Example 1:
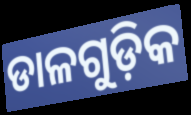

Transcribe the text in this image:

ଡାଳଗୁଡ଼ିକ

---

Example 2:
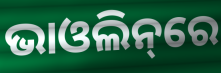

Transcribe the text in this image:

ଭାଓଲିନ୍‌ରେ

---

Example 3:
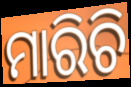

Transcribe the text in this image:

ମାରିଚି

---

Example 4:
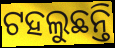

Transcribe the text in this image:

ଟହଲୁଛନ୍ତି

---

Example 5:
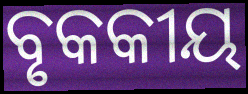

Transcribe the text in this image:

ବୃକକୀୟ